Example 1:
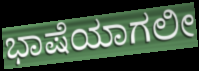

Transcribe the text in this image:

ಭಾಷೆಯಾಗಲೀ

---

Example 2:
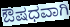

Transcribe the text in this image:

ಔಷಧವಾಗಿ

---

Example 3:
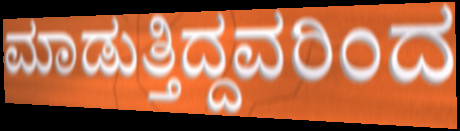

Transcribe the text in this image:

ಮಾಡುತ್ತಿದ್ದವರಿಂದ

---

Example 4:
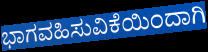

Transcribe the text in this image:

ಭಾಗವಹಿಸುವಿಕೆಯಿಂದಾಗಿ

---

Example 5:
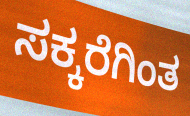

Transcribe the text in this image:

ಸಕ್ಕರೆಗಿಂತ